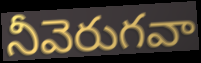
నీవెరుగవా